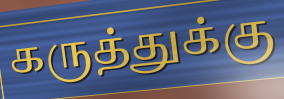
கருத்துக்கு